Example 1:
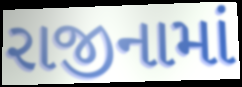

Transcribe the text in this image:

રાજીનામાં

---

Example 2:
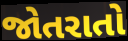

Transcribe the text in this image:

જોતરાતો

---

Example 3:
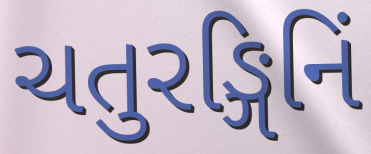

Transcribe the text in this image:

ચતુરઙ્ગિનિં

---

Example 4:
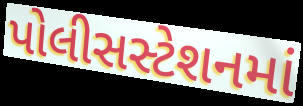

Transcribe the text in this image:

પોલીસસ્ટેશનમાં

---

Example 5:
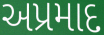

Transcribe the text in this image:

અપ્રમાદ